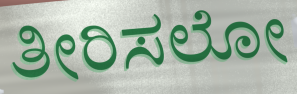
ತೀರಿಸಲೋ